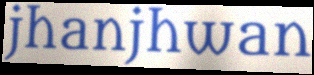
jhanjhwan